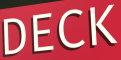
DECK